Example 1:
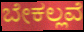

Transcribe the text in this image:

ಬೇಕಲ್ಲವೆ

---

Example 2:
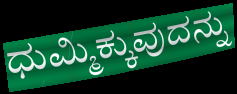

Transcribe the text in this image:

ಧುಮ್ಮಿಕ್ಕುವುದನ್ನು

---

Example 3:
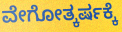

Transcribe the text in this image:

ವೇಗೋತ್ಕರ್ಷಕ್ಕೆ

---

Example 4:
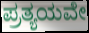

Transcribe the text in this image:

ಪ್ರತ್ಯಯವೇ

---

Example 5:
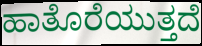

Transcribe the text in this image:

ಹಾತೊರೆಯುತ್ತದೆ